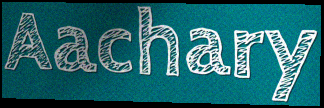
Aachary